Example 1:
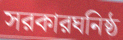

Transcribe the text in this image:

সরকারঘনিষ্ঠ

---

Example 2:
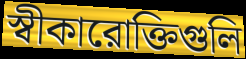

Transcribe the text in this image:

স্বীকারোক্তিগুলি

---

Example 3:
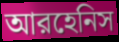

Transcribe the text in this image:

আরহেনিস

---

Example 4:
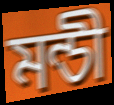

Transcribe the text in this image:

মন্ডী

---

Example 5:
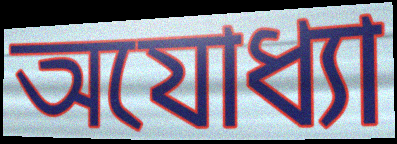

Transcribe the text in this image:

অযোধ্যা